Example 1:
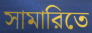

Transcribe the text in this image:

সামারিতে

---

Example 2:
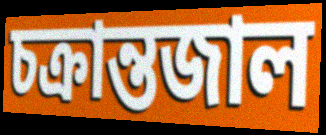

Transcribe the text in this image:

চক্রান্তজাল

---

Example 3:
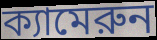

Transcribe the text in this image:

ক্যামেরুন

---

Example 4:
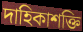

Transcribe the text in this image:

দাহিকাশক্তি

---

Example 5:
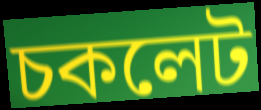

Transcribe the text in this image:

চকলেট